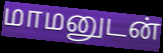
மாமனுடன்